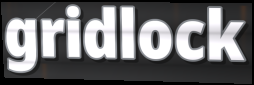
gridlock